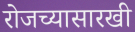
रोजच्यासारखी